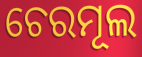
ଚେରମୂଲ